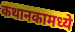
कथानकामध्ये